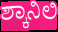
ಶ್ಕಾನಿಲಿ